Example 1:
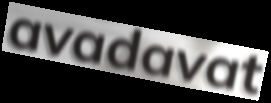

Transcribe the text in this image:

avadavat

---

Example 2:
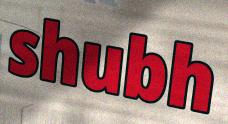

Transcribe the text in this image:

shubh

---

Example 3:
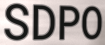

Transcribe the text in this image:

SDPO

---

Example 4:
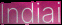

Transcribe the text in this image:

Indiai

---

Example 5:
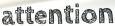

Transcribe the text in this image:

attention